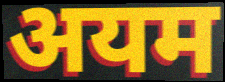
अयम